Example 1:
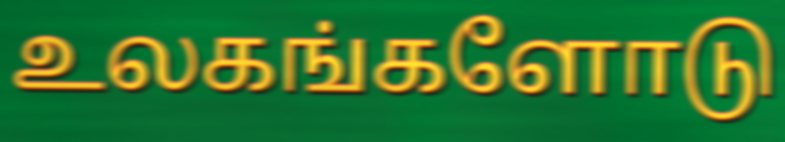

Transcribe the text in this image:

உலகங்களோடு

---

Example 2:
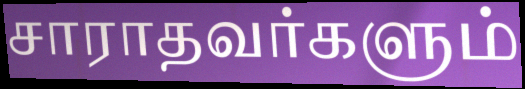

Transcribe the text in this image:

சாராதவர்களும்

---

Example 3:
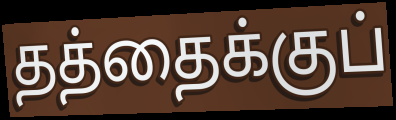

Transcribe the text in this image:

தத்தைக்குப்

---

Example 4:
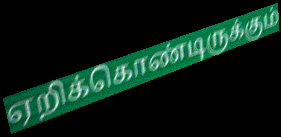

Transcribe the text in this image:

ஏறிக்கொண்டிருக்கும்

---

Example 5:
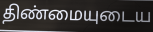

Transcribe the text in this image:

திண்மையுடைய